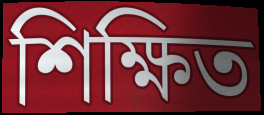
শিক্ষিত